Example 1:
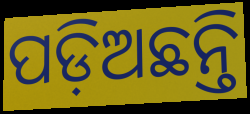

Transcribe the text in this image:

ପଡ଼ିଅଛନ୍ତି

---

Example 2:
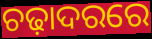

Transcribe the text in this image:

ଚଢ଼ାଦରରେ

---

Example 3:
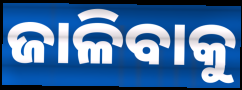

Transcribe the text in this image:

ଜାଳିବାକୁ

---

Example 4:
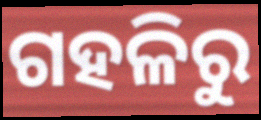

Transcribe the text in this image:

ଗହଳିରୁ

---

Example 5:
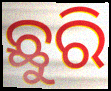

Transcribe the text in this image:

ଛୁରି